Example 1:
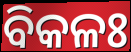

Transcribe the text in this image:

ବିକଳଃ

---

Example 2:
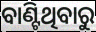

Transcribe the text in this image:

ବାଣ୍ଟିଥିବାରୁ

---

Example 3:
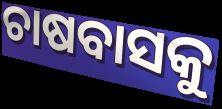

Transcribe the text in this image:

ଚାଷବାସକୁ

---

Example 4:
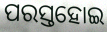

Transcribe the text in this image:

ପରସ୍ତହୋଇ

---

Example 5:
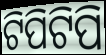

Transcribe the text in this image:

ଟିପିଟିପି